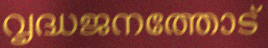
വൃദ്ധജനത്തോട്